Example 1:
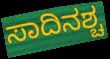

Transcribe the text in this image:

ಸಾದಿನಶ್ಚ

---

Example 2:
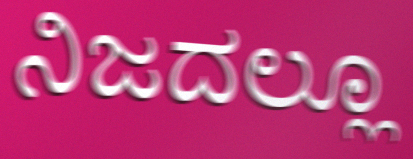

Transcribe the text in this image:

ನಿಜದಲ್ಲೂ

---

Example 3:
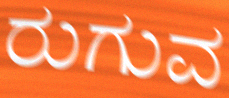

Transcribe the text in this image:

ರುಗುವ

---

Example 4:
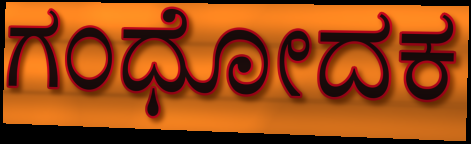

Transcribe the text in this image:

ಗಂಧೋದಕ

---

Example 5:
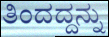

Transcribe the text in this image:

ತಿಂದದ್ದನ್ನು